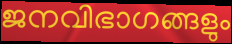
ജനവിഭാഗങ്ങളും